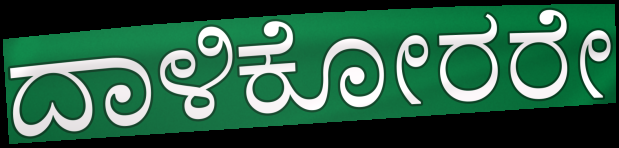
ದಾಳಿಕೋರರೇ